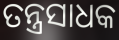
ତନ୍ତ୍ରସାଧକ